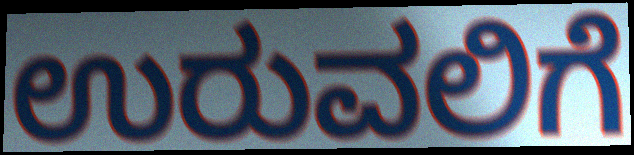
ಉರುವಲಿಗೆ